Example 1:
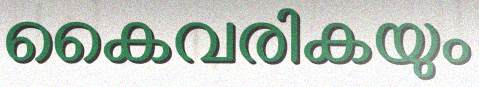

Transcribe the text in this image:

കൈവരികയും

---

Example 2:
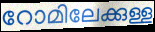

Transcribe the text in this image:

റോമിലേക്കുള്ള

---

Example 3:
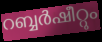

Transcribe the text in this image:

റബ്ബർഷീറ്റും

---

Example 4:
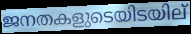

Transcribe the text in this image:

ജനതകളുടെയിടയില്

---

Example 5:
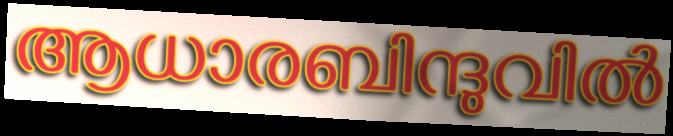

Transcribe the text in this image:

ആധാരബിന്ദുവിൽ